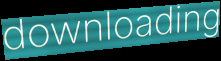
downloading